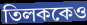
তিলককেও